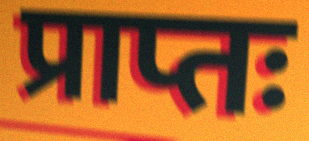
प्राप्तः